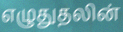
எழுதுதலின்